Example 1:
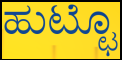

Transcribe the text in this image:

ಹುಟ್ಟೊ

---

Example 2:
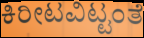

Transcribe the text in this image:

ಕಿರೀಟವಿಟ್ಟಂತೆ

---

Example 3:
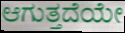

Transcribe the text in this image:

ಆಗುತ್ತದೆಯೇ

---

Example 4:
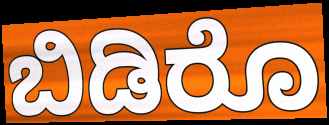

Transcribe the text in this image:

ಬಿಡಿರೊ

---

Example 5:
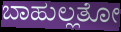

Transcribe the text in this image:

ಬಾಹುಲ್ಲತೋ